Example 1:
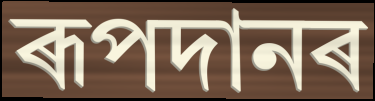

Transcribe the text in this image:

ৰূপদানৰ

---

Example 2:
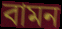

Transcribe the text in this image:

বামন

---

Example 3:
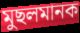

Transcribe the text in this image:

মুছলমানক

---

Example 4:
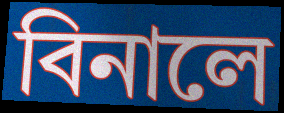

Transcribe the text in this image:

বিনালে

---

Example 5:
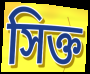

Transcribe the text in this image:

সিক্ত